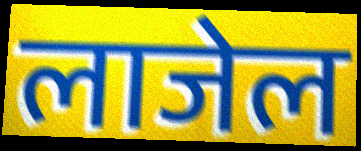
लाजेल